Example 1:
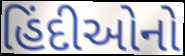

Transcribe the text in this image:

હિંદીઓનો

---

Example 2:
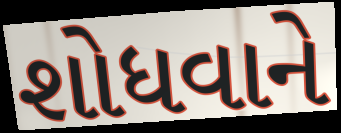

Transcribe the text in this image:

શોધવાને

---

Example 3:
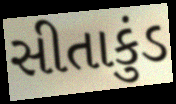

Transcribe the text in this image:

સીતાકુંડ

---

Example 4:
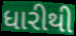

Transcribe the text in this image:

ધારીથી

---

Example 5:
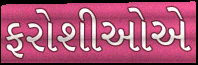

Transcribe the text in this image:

ફરોશીઓએ